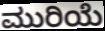
ಮುರಿಯೆ